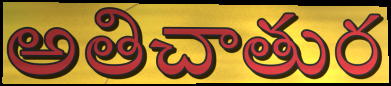
అతిచాతుర